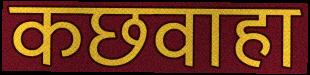
कछवाहा